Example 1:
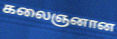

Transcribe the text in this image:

கலைஞனான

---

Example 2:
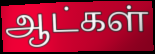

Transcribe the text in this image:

ஆட்கள்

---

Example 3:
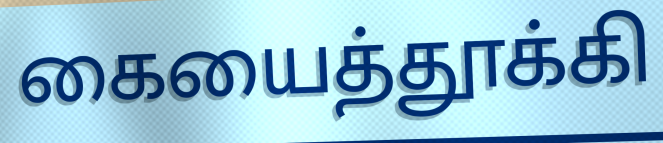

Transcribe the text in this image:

கையைத்தூக்கி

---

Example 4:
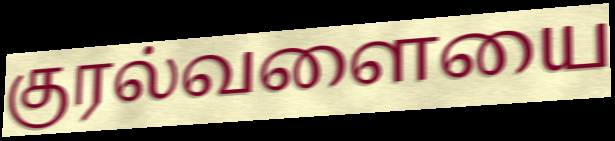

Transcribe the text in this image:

குரல்வளையை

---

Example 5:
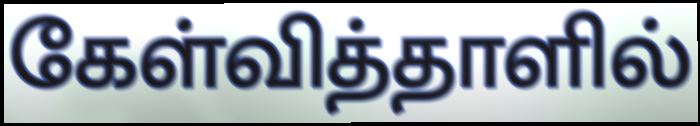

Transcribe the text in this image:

கேள்வித்தாளில்